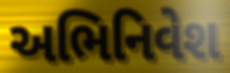
અભિનિવેશ